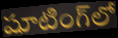
షూటింగ్‌లో